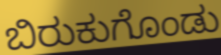
ಬಿರುಕುಗೊಂಡು